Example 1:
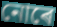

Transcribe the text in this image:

নোৰে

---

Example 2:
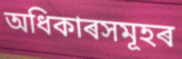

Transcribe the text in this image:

অধিকাৰসমূহৰ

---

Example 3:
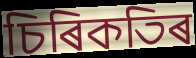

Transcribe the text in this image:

চিৰিকতিৰ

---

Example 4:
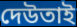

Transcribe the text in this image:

দেউতাই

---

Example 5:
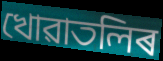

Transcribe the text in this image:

খোৱাতলিৰ